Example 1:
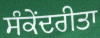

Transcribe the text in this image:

ਸੰਕੇਂਦਰੀਤਾ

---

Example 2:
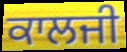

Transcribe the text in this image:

ਕਾਲਜੀ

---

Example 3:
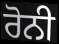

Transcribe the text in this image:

ਰੋਨੀ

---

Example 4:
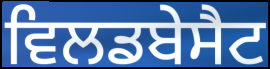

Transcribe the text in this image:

ਵਿਲਡਬੇਸੈਟ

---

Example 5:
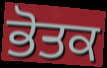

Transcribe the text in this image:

ਭੋਤਕ